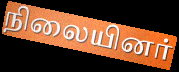
நிலையினர்